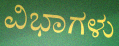
ವಿಭಾಗಳು